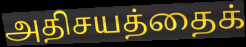
அதிசயத்தைக்